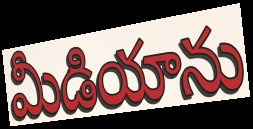
మీడియాను